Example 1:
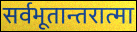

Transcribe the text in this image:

सर्वभूतान्तरात्मा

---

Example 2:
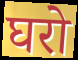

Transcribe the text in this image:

घरो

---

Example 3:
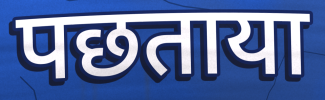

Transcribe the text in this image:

पछताया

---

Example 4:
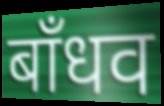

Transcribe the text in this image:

बाँधव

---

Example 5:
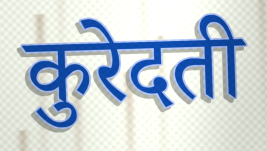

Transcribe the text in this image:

कुरेदती